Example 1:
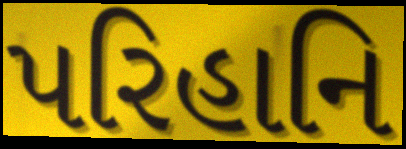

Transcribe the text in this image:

પરિહાનિ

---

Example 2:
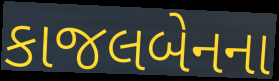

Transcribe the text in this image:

કાજલબેનના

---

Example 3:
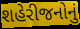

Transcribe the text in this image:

શહેરીજનોનું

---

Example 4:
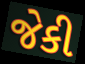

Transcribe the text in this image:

જેકી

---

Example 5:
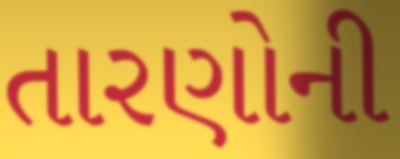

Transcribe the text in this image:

તારણોની